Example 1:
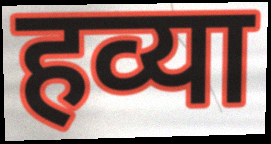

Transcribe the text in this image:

हव्या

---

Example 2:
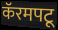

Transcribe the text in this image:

कॅरमपटू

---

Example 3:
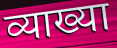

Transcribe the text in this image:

व्याख्या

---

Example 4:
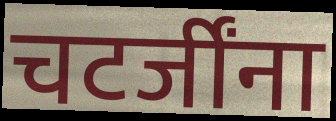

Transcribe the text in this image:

चटर्जींना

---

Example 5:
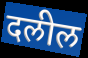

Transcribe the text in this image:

दलील